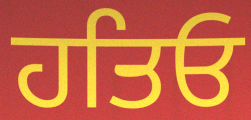
ਹਤਿਓ